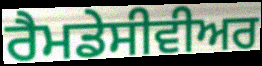
ਰੈਮਡੇਸੀਵੀਅਰ